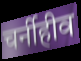
चर्नीहीव